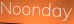
Noonday